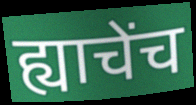
ह्याचेंच